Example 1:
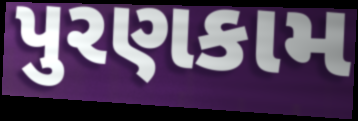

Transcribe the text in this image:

પુરણકામ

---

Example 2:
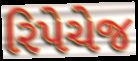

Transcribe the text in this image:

રિપેચેજ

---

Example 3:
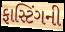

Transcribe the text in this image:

ફાસ્ટિંગની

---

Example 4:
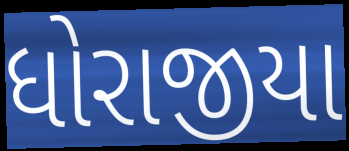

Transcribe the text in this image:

ધોરાજીયા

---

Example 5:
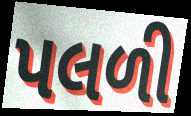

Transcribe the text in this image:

પલળી